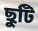
ছুটি